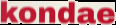
kondae